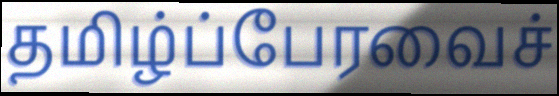
தமிழ்ப்பேரவைச்